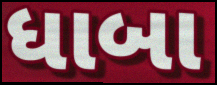
ધાબા